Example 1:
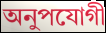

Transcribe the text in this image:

অনুপযোগী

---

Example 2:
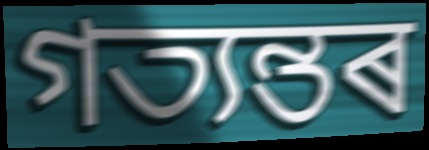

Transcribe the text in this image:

গত্যন্তৰ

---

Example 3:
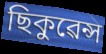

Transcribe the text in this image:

ছিকুৱেন্স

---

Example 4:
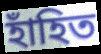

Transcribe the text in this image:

হাঁহিত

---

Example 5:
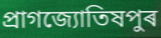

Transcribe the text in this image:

প্ৰাগজ্যোতিষপুৰ